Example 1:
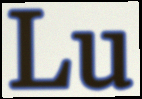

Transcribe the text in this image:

Lu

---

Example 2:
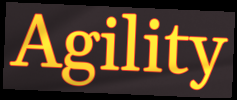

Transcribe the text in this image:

Agility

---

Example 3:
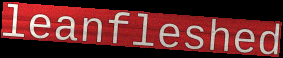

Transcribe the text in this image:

leanfleshed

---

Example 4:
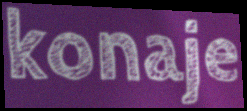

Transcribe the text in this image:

konaje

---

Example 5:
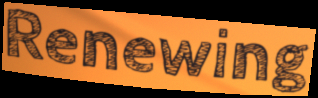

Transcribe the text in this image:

Renewing